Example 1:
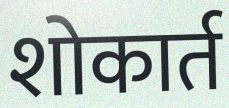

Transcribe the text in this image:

शोकार्त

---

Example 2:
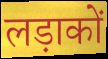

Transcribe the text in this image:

लड़ाकों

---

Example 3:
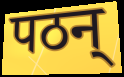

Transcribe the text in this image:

पठन्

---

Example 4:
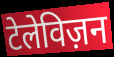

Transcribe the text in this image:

टेलेविज़न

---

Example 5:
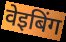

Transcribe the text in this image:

वेइबिंग